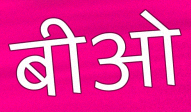
बीओ